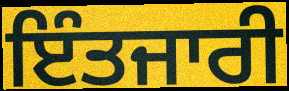
ਇੰਤਜਾਰੀ